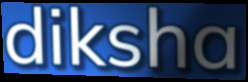
diksha